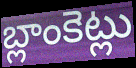
బ్లాంకెట్లు